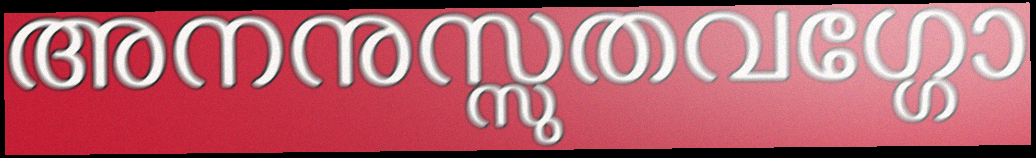
അനനുസ്സുതവഗ്ഗോ